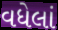
વધેલાં